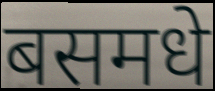
बसमधे